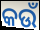
କଉଁ